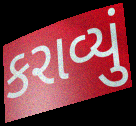
કરાવ્યું